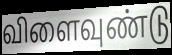
விளைவுண்டு